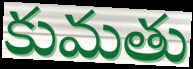
కుమతు